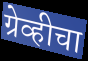
ग्रेव्हीचा